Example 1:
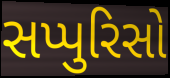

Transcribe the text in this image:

સપ્પુરિસો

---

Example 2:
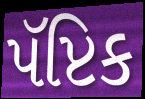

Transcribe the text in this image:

પૅપ્ટિક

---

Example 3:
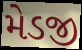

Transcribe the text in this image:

મેડજી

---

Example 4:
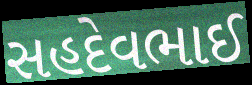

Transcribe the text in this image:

સહદેવભાઈ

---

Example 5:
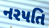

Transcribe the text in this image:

નરપતિ